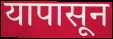
यापासून